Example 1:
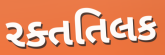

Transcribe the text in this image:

રક્તતિલક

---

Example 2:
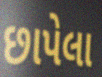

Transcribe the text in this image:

છાપેલા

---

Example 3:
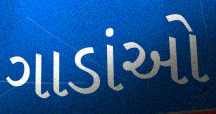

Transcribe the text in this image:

ગાડાંઓ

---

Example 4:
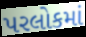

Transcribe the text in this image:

પરલોકમાં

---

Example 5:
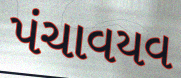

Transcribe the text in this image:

પંચાવયવ